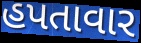
હપતાવાર